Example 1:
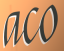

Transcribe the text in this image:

aco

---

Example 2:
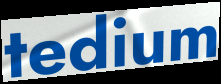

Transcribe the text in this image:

tedium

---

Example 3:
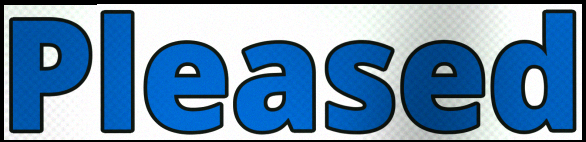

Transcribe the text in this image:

Pleased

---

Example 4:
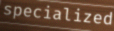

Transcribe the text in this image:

specialized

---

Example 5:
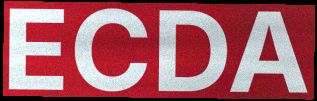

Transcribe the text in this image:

ECDA